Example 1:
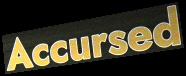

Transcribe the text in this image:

Accursed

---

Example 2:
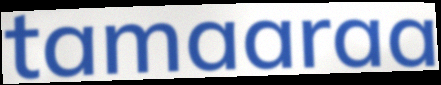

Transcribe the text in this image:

tamaaraa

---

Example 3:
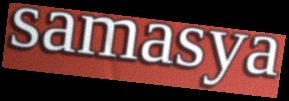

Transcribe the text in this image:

samasya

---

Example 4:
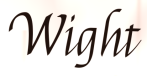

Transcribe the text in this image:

Wight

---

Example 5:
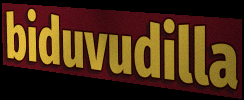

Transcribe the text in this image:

biduvudilla